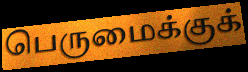
பெருமைக்குக்